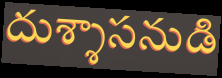
దుశ్శాసనుడి